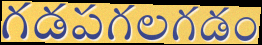
గడపగలగడం